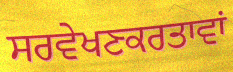
ਸਰਵੇਖਣਕਰਤਾਵਾਂ